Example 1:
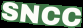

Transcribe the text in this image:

SNCC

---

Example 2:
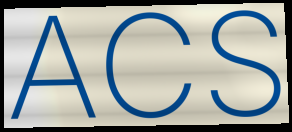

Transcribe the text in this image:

ACS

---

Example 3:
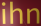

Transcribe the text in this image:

ihn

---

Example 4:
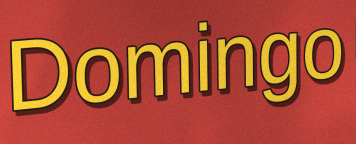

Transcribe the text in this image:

Domingo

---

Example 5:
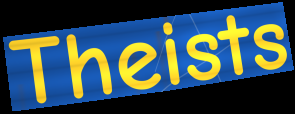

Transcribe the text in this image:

Theists